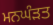
ਮਨਘੰੜਤ